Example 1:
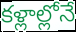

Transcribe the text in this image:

కళ్లాల్లోనే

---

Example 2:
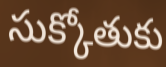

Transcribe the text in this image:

సుక్కోతుకు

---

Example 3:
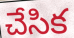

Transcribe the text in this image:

చేసిక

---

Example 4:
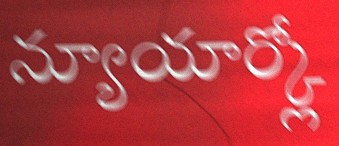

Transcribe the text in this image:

న్యూయార్క్లో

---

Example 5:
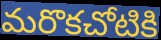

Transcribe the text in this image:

మరొకచోటికి